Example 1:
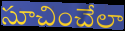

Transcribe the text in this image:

సూచించేలా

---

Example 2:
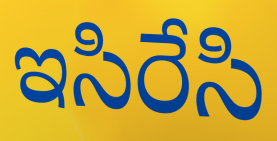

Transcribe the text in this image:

ఇసిరేసి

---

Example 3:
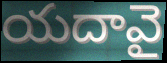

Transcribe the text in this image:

యదావై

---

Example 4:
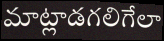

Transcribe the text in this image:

మాట్లాడగలిగేలా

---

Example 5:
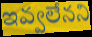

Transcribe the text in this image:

ఇవ్వలేనని